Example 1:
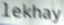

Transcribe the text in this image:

lekhay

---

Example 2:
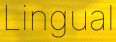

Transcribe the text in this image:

Lingual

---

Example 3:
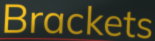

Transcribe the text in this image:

Brackets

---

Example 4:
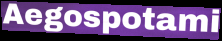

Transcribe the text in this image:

Aegospotami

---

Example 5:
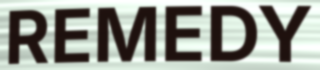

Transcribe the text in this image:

REMEDY